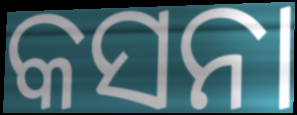
କସନା